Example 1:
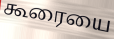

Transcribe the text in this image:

கூரையை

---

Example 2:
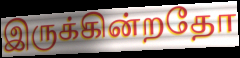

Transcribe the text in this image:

இருக்கின்றதோ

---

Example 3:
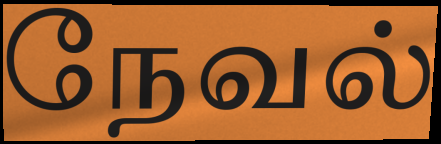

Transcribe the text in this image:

நேவல்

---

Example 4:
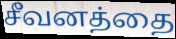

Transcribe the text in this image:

சீவனத்தை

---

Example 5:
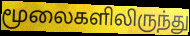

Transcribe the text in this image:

மூலைகளிலிருந்து